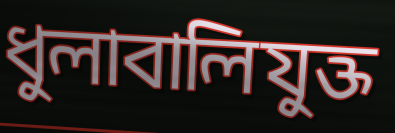
ধুলাবালিযুক্ত